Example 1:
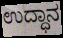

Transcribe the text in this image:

ಉದ್ಧಾನ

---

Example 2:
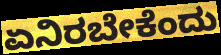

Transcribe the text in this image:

ಏನಿರಬೇಕೆಂದು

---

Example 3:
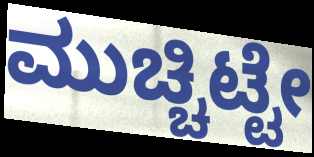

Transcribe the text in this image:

ಮುಚ್ಚಿಟ್ಟೇ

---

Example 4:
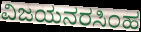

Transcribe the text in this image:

ವಿಜಯನರಸಿಂಹ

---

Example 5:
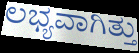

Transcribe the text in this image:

ಲಭ್ಯವಾಗಿತ್ತು